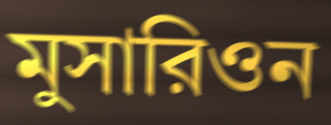
মুসারিওন